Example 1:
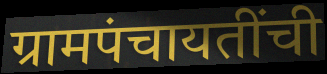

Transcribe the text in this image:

ग्रामपंचायतींची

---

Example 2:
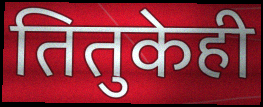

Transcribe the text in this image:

तितुकेही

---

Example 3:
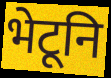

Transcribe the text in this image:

भेटूनि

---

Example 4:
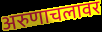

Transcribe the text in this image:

अरुणाचलावर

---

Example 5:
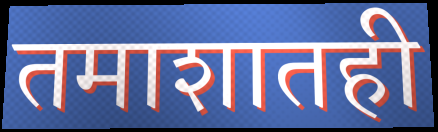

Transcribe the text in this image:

तमाशातही